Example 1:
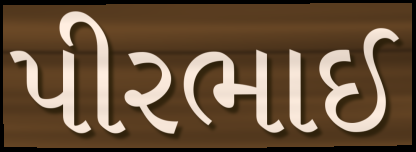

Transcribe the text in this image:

પીરભાઈ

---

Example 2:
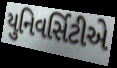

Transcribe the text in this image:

યુનિવર્સિટીએ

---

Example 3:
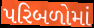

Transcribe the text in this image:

પરિબળોમાં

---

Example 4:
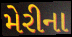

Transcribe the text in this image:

મેરીના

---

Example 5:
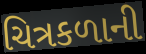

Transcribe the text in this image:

ચિત્રકળાની